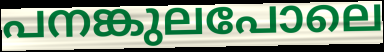
പനങ്കുലപോലെ